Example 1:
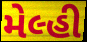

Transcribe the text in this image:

મેલ્હી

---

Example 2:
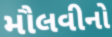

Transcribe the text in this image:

મૌલવીનો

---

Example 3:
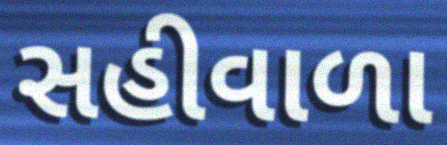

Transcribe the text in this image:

સહીવાળા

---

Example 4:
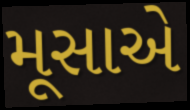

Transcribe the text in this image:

મૂસાએ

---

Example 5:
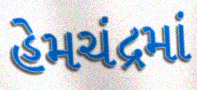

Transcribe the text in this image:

હેમચંદ્રમાં